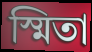
স্মিতা